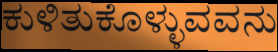
ಕುಳಿತುಕೊಳ್ಳುವವನು